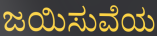
ಜಯಿಸುವೆಯ